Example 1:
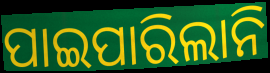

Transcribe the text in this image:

ପାଇପାରିଲାନି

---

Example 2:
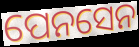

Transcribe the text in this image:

ପେନସେନ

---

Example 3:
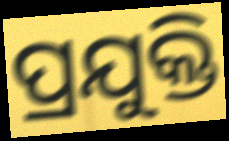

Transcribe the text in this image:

ପ୍ରଯୁକ୍ତି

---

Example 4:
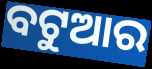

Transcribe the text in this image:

ବଟୁଆର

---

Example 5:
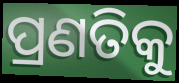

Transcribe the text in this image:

ପ୍ରଣତିକୁ